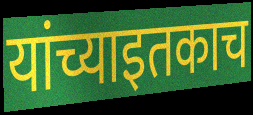
यांच्याइतकाच